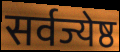
सर्वज्येष्ठ